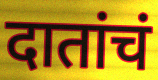
दातांचं